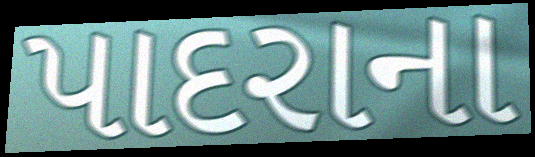
પાદરાના